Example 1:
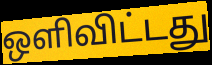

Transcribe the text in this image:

ஒளிவிட்டது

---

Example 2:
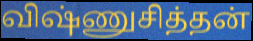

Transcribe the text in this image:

விஷ்ணுசித்தன்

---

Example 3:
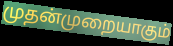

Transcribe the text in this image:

முதன்முறையாகும்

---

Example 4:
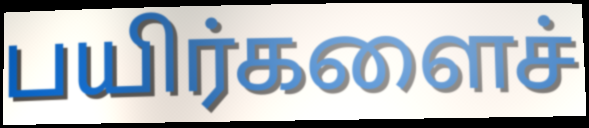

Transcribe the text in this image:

பயிர்களைச்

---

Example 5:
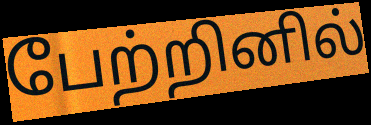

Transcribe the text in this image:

பேற்றினில்